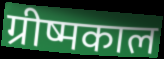
ग्रीष्मकाल